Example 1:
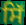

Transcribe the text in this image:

ਸਿੱ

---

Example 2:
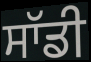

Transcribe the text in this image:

ਸਾੱਡੀ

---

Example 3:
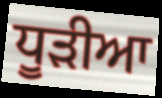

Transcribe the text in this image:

ਧੂੜੀਆ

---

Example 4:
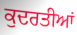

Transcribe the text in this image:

ਕੁਦਰਤੀਆਂ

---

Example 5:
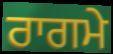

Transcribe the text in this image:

ਰਾਗਮੇ